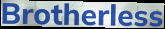
Brotherless